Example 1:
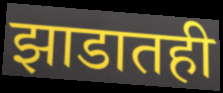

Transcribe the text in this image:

झाडातही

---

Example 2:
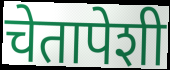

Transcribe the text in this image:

चेतापेशी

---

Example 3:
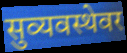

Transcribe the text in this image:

सुव्यवस्थेवर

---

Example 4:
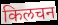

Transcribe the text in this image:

किलचन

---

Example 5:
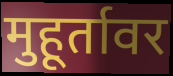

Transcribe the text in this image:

मुहूर्तावर